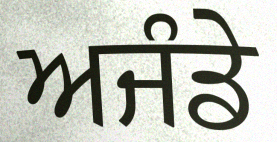
ਅਜੰਡੇ